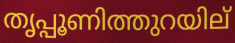
തൃപ്പൂണിത്തുറയില്